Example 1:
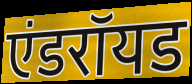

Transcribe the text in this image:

एंडरॉयड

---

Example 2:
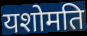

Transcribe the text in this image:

यशोमति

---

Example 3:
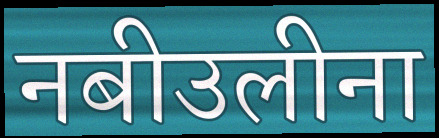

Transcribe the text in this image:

नबीउलीना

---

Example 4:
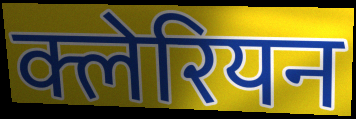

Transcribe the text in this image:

क्लेरियन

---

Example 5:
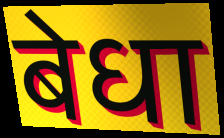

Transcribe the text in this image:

बेधा